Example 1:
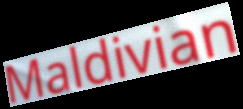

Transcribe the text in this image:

Maldivian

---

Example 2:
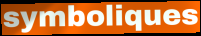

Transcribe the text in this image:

symboliques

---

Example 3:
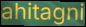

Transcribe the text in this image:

ahitagni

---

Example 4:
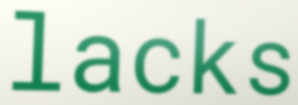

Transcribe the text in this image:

lacks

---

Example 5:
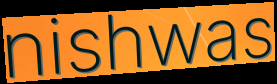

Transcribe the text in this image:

nishwas